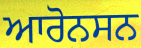
ਆਰੋਨਸਨ